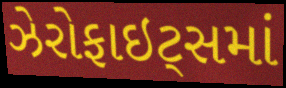
ઝેરોફાઇટ્સમાં